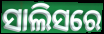
ସାଲିସରେ